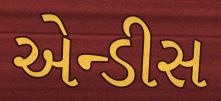
એન્ડીસ